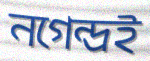
নগেন্দ্রই